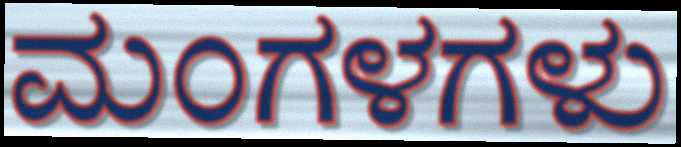
ಮಂಗಳಗಳು